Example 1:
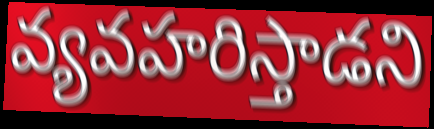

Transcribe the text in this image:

వ్యవహరిస్తాడని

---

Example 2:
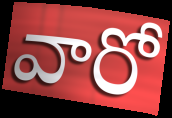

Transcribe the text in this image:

వారో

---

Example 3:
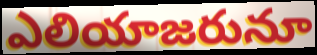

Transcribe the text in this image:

ఎలియాజరునూ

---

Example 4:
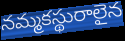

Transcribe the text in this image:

నమ్మకస్థురాలైన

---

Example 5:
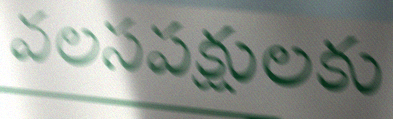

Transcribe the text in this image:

వలసపక్షులకు